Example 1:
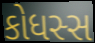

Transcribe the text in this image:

કોધસ્સ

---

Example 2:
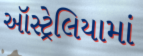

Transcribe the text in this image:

ઑસ્ટ્રેલિયામાં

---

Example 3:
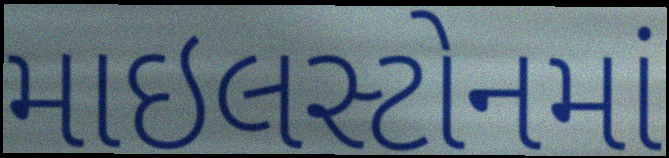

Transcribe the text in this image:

માઇલસ્ટોનમાં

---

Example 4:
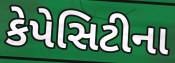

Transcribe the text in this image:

કેપેસિટીના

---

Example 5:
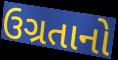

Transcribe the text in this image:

ઉગ્રતાનો